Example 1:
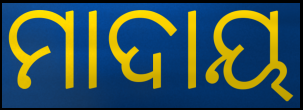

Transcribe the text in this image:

ମାଦାୟ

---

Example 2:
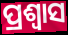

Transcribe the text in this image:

ପ୍ରଶ୍ୱାସ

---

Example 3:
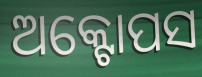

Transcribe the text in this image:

ଅକ୍ଟୋପସ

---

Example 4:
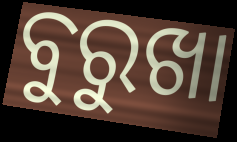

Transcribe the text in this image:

ବୁରୁଖା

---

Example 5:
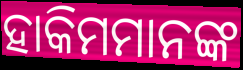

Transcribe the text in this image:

ହାକିମମାନଙ୍କ